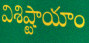
విశిష్టాయాం